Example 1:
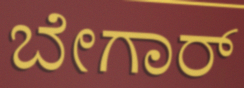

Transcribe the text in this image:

ಬೇಗಾರ್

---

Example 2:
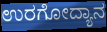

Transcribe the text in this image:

ಉರಗೋದ್ಯಾನ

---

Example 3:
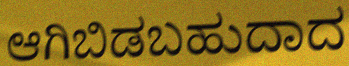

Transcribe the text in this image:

ಆಗಿಬಿಡಬಹುದಾದ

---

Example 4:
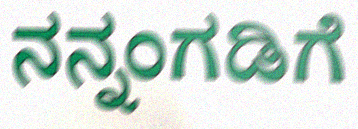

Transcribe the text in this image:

ನನ್ನಂಗಡಿಗೆ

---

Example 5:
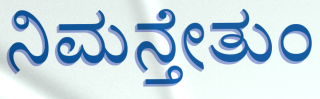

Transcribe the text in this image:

ನಿಮನ್ತೇತುಂ